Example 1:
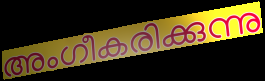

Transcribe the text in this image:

അംഗീകരിക്കുന്നു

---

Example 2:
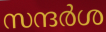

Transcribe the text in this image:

സന്ദർശ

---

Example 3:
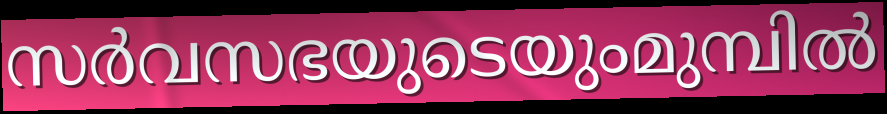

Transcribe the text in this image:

സർവസഭയുടെയുംമുമ്പിൽ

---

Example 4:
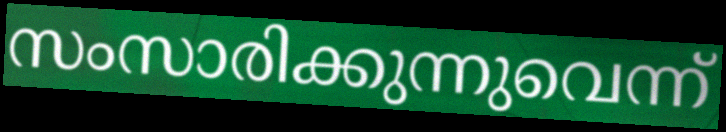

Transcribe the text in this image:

സംസാരിക്കുന്നുവെന്ന്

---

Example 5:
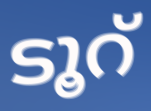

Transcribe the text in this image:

ടൂറ്